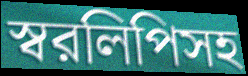
স্বরলিপিসহ